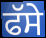
ਫੱਸੇ